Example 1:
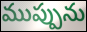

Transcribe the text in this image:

ముప్పును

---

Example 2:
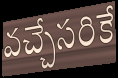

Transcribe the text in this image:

వచ్చేసరికే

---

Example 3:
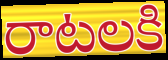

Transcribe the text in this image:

రాటలకి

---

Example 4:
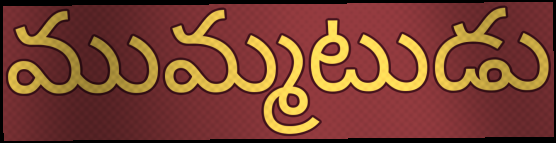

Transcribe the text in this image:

ముమ్మటుడు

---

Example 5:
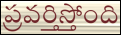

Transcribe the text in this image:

ప్రవర్తిస్తోంది